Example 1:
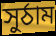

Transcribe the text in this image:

সুঠাম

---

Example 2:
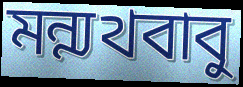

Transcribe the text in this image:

মন্মথবাবু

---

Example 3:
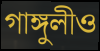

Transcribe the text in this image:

গাঙ্গুলীও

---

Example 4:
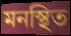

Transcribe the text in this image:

মনস্থিত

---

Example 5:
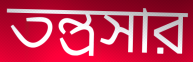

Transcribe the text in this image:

তন্ত্রসার